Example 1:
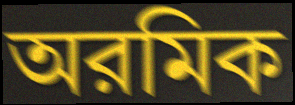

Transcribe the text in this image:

অরমিক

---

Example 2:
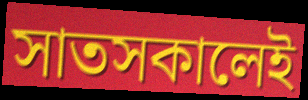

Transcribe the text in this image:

সাতসকালেই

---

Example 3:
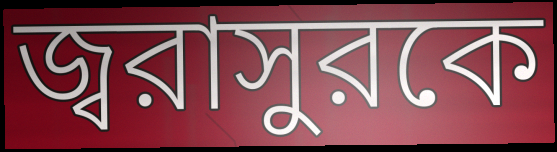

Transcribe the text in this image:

জ্বরাসুরকে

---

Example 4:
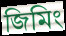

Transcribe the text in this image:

জিমিং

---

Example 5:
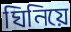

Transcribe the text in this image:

ঘিনিয়ে